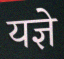
यज्ञे